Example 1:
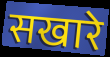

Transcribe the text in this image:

सखारे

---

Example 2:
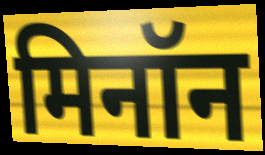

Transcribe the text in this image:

मिनॉन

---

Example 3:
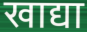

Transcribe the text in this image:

खाद्या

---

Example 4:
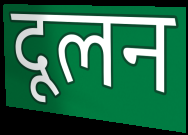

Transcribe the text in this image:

दूलन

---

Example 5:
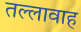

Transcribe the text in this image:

तल्लावाह